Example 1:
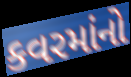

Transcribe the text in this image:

કવરમાંનો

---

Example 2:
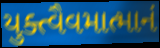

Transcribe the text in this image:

યુક્ત્વૈવમાત્માનં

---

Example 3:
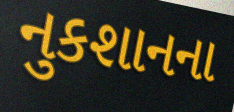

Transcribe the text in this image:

નુકશાનના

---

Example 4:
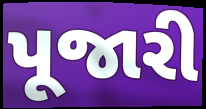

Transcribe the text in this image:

પૂજારી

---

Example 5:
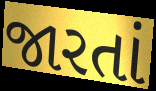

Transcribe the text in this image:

જારતાં